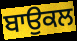
ਬਾਉਕਲ